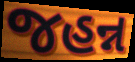
જહન્ન